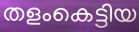
തളംകെട്ടിയ